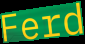
Ferd